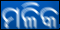
ମଳିକ